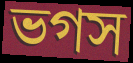
ভগস